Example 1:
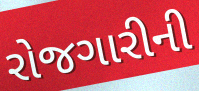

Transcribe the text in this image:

રોજગારીની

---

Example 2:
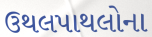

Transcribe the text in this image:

ઉથલપાથલોના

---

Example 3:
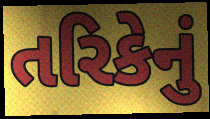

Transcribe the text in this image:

તરિકેનું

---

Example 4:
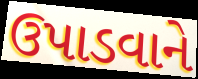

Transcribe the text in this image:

ઉપાડવાને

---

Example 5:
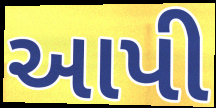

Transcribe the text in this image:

આપી